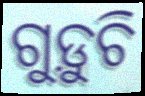
ଗୁଡ଼ୁଚି